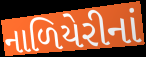
નાળિયેરીનાં